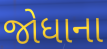
જોધાના